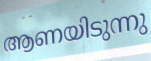
ആണയിടുന്നു